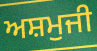
ਅਸ਼ਮੁਜੀ